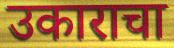
उकाराचा